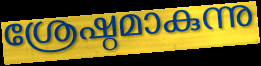
ശ്രേഷ്ഠമാകുന്നു